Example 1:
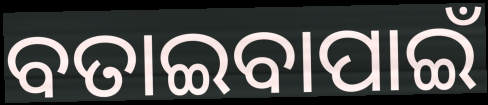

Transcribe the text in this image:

ବତାଇବାପାଇଁ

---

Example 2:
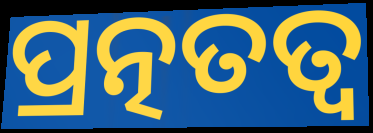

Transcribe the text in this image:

ପ୍ରତ୍ନତତ୍ୱ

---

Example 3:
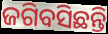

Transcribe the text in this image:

ଜଗିବସିଛନ୍ତି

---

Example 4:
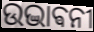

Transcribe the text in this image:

ଉଦ୍ଭାଵନୀ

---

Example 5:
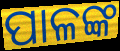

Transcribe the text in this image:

ପାଳଙ୍କ